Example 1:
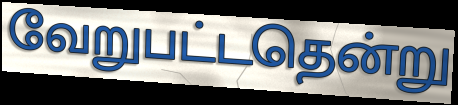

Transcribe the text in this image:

வேறுபட்டதென்று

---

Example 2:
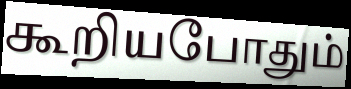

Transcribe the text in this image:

கூறியபோதும்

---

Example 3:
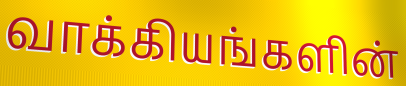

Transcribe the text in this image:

வாக்கியங்களின்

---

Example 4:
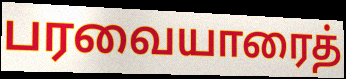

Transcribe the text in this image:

பரவையாரைத்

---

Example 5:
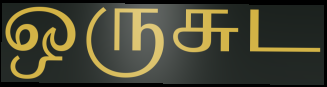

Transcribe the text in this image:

ஒருசுட